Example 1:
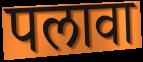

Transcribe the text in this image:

पलावा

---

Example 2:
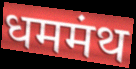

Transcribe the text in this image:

धममंथ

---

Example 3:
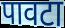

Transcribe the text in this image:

पावटा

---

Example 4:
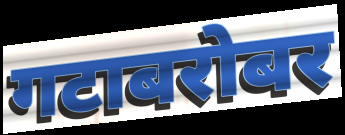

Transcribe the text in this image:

गटाबरोबर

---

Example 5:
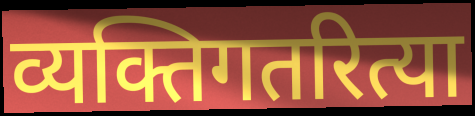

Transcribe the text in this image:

व्यक्तिगतरित्या